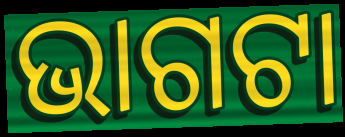
ଭାଗଟା